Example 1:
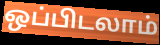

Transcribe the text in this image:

ஒப்பிடலாம்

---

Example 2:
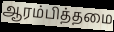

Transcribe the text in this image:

ஆரம்பித்தமை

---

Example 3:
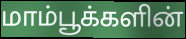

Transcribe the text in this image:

மாம்பூக்களின்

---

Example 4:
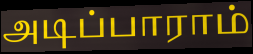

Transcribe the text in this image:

அடிப்பாராம்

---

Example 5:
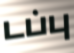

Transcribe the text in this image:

டப்பு